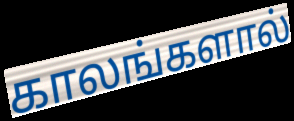
காலங்களால்